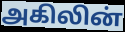
அகிலின்